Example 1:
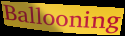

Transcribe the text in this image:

Ballooning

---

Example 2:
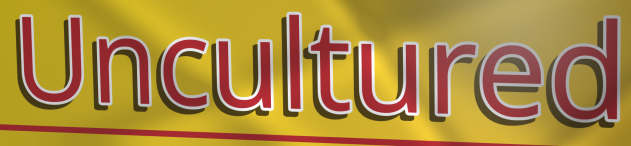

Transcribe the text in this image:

Uncultured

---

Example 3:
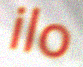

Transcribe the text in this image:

ilo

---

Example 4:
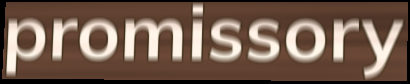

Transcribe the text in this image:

promissory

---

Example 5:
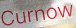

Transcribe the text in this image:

Curnow